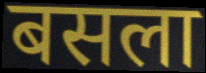
बसला